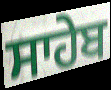
ਸਾਹੇਬ